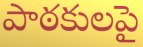
పాఠకులపై